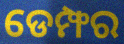
ଡେମ୍ଫର